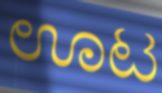
ಊಟ